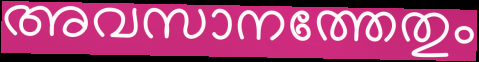
അവസാനത്തേതും